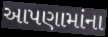
આપણામાંના